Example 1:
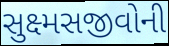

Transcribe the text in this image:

સુક્ષ્મસજીવોની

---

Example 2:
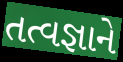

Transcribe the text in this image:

તત્વજ્ઞાને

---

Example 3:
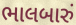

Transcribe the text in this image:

ભાલબારું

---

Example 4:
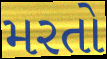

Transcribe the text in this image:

મરતો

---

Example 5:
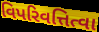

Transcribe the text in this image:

વિપરિવત્તિત્વા